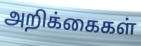
அறிக்கைகள்